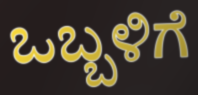
ಒಬ್ಬಳಿಗೆ